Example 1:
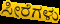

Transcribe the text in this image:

ಸೀರೆಗಳು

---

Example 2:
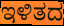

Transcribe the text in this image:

ಇಳಿತದ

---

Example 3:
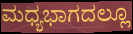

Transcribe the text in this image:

ಮಧ್ಯಭಾಗದಲ್ಲೂ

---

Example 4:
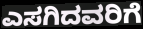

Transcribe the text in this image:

ಎಸಗಿದವರಿಗೆ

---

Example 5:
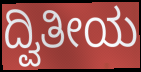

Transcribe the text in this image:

ದ್ವಿತೀಯ